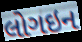
લોગઇન